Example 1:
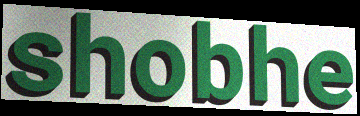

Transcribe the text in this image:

shobhe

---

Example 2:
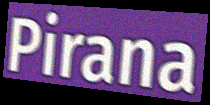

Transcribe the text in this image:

Pirana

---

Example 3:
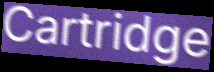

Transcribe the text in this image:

Cartridge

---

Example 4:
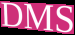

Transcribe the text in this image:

DMS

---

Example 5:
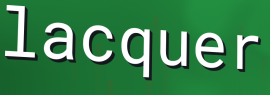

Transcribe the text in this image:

lacquer